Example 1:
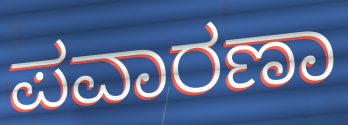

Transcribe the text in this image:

ಪವಾರಣಾ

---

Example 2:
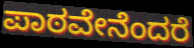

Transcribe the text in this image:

ಪಾಠವೇನೆಂದರೆ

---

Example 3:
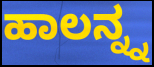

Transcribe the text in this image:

ಹಾಲನ್ನ್ನ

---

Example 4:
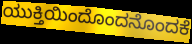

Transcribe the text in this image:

ಯುಕ್ತಿಯಿಂದೊಂದನೊಂದಕೆ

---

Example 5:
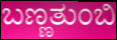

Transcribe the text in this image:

ಬಣ್ಣತುಂಬಿ